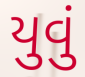
યુવું